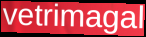
vetrimagal